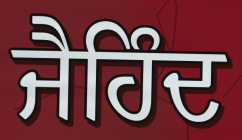
ਜੈਹਿੰਦ